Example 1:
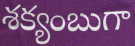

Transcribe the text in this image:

శక్యంబుగా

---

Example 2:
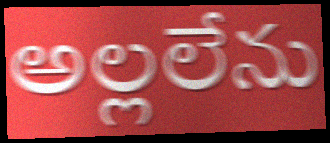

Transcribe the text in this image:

అల్లలేను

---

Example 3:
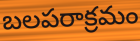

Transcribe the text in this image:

బలపరాక్రమం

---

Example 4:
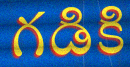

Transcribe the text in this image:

గడికి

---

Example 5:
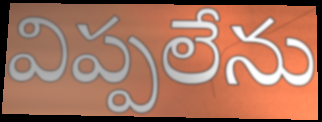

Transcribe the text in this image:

విప్పలేను